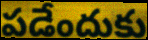
పడేందుకు